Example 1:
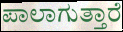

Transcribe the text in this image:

ಪಾಲಾಗುತ್ತಾರೆ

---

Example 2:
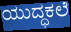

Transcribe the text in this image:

ಯುದ್ಧಕಲೆ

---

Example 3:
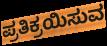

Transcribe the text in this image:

ಪ್ರತಿಕ್ರಯಿಸುವ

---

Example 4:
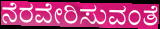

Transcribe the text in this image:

ನೆರವೇರಿಸುವಂತೆ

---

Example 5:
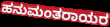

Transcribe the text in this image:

ಹನುಮಂತರಾಯರ